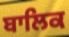
ਬਾਲਿਕ